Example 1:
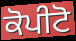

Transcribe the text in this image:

ਕੋਪੀਟੋ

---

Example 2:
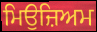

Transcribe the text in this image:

ਮਿਉਜ਼ਿਅਮ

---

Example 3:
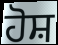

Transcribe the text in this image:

ਹੋਸ਼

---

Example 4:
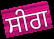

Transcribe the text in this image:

ਸੀਗ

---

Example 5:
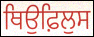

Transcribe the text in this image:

ਥਿਉਫ਼ਿਲੁਸ